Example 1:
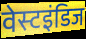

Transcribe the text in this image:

वेस्टइंडिज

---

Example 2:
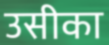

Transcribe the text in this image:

उसीका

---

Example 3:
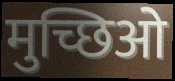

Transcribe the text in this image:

मुच्छिओ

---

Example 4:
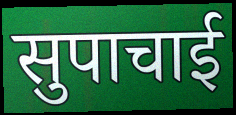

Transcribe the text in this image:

सुपाचाई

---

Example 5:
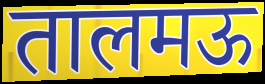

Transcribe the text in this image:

तालमऊ